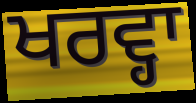
ਖਰਵ੍ਹਾ